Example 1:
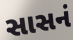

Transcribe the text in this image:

સાસનં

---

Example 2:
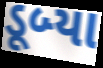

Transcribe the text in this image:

ડૂબ્યા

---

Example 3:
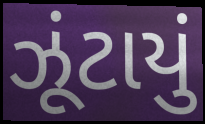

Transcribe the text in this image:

ઝૂંટાયું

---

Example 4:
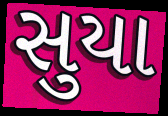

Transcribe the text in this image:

સુયા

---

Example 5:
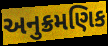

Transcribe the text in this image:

અનુક્રમણિક